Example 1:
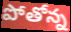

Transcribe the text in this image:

పోతోన్న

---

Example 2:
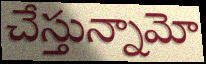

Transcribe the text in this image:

చేస్తున్నామో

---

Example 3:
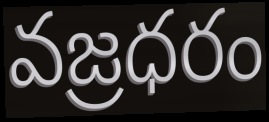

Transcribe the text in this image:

వజ్రధరం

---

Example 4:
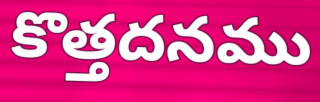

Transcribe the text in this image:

కొత్తదనము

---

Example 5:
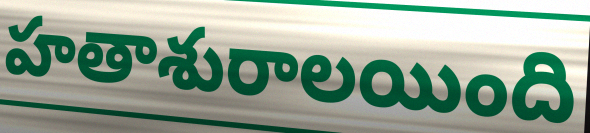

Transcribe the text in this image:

హతాశురాలయింది